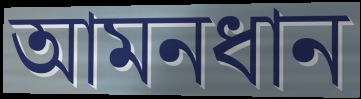
আমনধান